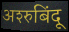
अश्रुबिंदू